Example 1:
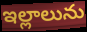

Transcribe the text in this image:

ఇల్లాలును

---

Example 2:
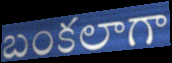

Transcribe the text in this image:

బంకలాగా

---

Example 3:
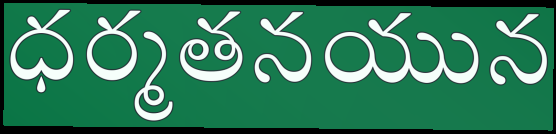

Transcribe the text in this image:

ధర్మతనయున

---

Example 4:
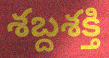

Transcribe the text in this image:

శబ్దశక్తి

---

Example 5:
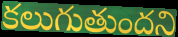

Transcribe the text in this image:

కలుగుతుందని